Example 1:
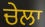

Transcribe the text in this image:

ਚੇਲਾ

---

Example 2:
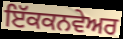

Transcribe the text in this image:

ਇੱਕਕਨਵੇਅਰ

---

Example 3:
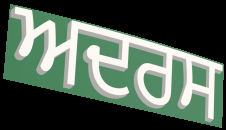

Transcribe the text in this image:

ਅਦਰਸ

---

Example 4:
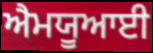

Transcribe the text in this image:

ਐਮਯੂਆਈ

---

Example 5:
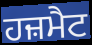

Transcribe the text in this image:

ਹਜ਼ਮੈਟ